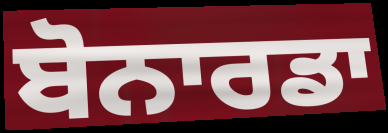
ਬੋਨਾਰਡਾ